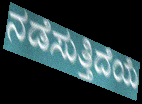
ನಡೆಸುತ್ತಿದೆಯೆ